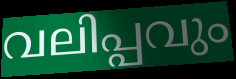
വലിപ്പവും